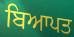
ਬਿਆਪਤ